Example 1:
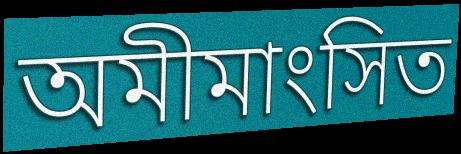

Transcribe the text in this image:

অমীমাংসিত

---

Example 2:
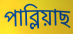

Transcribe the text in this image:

পাব্লিয়াছ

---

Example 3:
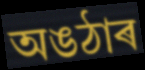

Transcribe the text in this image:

অঙঠাৰ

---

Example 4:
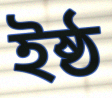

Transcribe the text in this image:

ইষ্ঠ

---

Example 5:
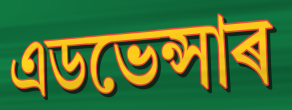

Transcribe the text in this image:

এডভেন্সাৰ